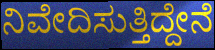
ನಿವೇದಿಸುತ್ತಿದ್ದೇನೆ